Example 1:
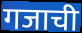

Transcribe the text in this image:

गजाची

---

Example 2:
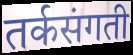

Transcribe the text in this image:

तर्कसंगती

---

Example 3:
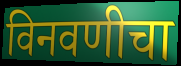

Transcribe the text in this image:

विनवणीचा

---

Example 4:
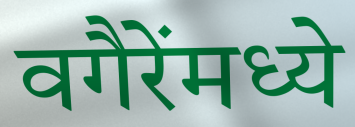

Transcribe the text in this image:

वगैरेंमध्ये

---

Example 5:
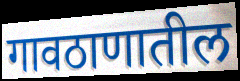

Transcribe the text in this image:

गावठाणातील